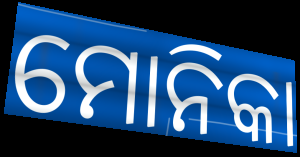
ମୋନିକା